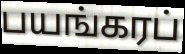
பயங்கரப்